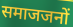
समाजजनों